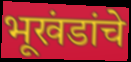
भूखंडांचे